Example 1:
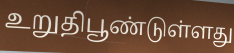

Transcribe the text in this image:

உறுதிபூண்டுள்ளது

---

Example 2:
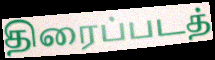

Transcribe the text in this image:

திரைப்படத்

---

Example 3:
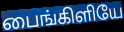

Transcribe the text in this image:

பைங்கிளியே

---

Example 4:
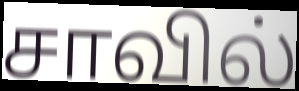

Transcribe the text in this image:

சாவில்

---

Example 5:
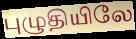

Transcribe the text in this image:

புழுதியிலே